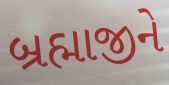
બ્રહ્માજીને